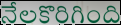
నేలకొరిగింది